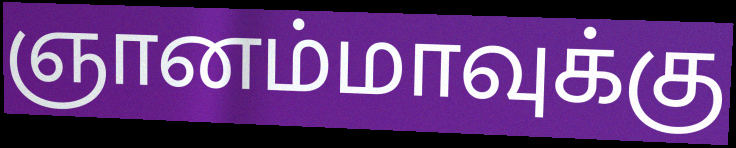
ஞானம்மாவுக்கு